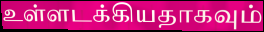
உள்ளடக்கியதாகவும்